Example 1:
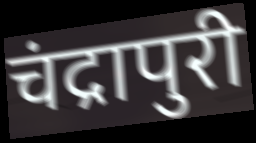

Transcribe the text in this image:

चंद्रापुरी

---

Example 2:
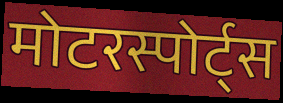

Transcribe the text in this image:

मोटरस्पोर्ट्स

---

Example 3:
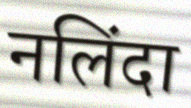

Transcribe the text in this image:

नलिंदा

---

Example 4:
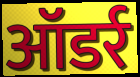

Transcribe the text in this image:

ऑडर्र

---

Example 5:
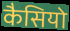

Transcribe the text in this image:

कैसियो